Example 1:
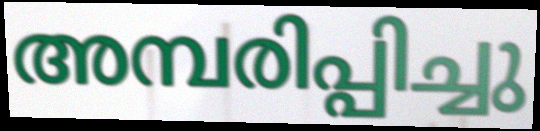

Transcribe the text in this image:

അമ്പരിപ്പിച്ചു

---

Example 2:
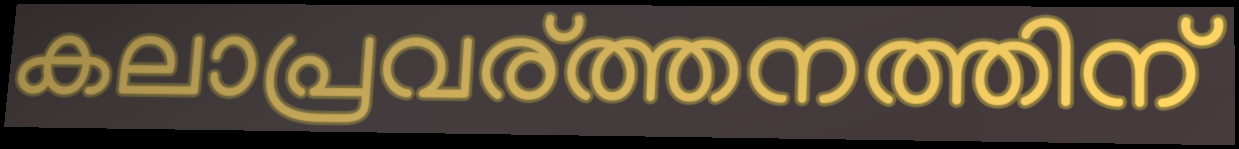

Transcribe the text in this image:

കലാപ്രവര്ത്തനത്തിന്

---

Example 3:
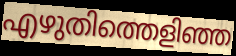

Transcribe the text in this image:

എഴുതിത്തെളിഞ്ഞ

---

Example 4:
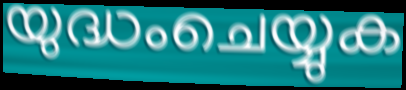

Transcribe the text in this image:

യുദ്ധംചെയ്യുക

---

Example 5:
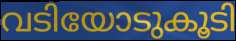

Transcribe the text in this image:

വടിയോടുകൂടി